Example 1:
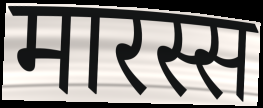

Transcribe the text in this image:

मारस्स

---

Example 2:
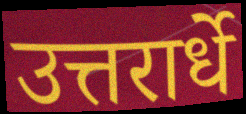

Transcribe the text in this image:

उत्तरार्धे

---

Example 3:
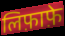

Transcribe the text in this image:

लिफ़ाफ़े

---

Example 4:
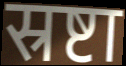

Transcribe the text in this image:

स्रष्टा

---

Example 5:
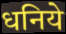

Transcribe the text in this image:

धनिये